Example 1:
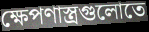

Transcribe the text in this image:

ক্ষেপণাস্ত্রগুলোতে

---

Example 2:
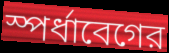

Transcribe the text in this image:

স্পর্ধাবেগের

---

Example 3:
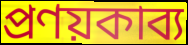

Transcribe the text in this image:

প্রণয়কাব্য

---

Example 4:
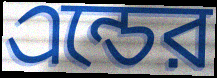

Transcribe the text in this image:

এন্ডের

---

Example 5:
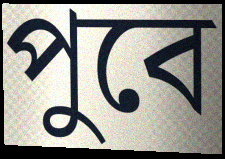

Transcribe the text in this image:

পুবে